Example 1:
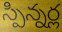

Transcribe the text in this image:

స్పిన్నర్ల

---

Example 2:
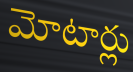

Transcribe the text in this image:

మోటార్లు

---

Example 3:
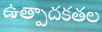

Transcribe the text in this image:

ఉత్పాదకతల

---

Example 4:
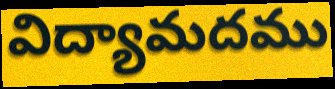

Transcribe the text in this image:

విద్యామదము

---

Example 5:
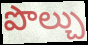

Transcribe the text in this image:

పొల్చు